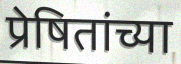
प्रेषितांच्या